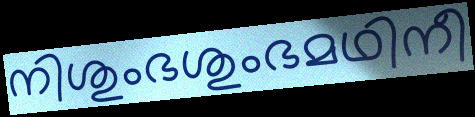
നിശുംഭശുംഭമഥിനീ